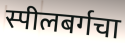
स्पीलबर्गचा